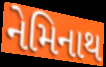
નેમિનાથ